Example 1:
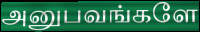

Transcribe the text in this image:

அனுபவங்களே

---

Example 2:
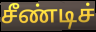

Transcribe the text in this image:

சீண்டிச்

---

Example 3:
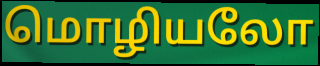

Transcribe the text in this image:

மொழியலோ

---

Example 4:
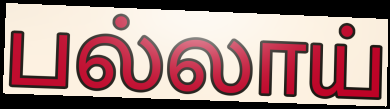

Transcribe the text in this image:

பல்லாய்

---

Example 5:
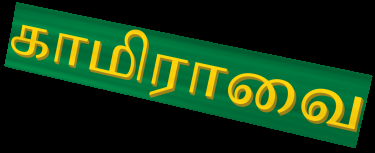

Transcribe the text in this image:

காமிராவை